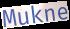
Mukne